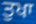
ਤੁਖਾ